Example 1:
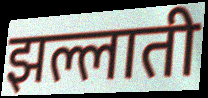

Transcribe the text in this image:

झल्लाती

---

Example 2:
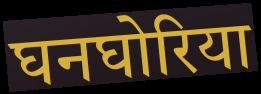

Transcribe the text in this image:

घनघोरिया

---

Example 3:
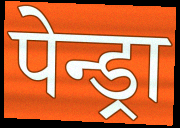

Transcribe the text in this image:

पेन्ड्रा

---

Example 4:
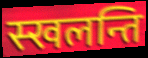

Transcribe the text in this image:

स्खलन्ति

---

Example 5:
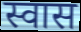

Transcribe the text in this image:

स्वास